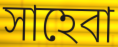
সাহেবা